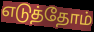
எடுத்தோம்